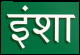
इंशा